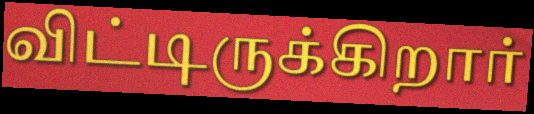
விட்டிருக்கிறார்